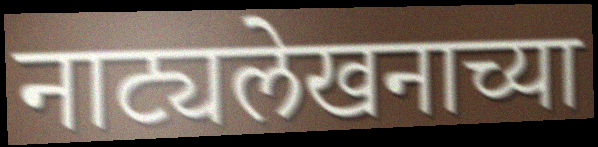
नाट्यलेखनाच्या